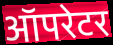
ऑपरेटर